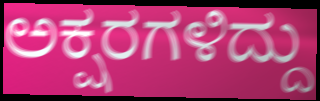
ಅಕ್ಷರಗಳಿದ್ದು